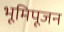
भूमिपूजन